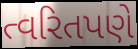
ત્વરિતપણે